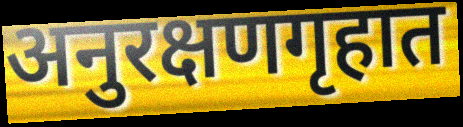
अनुरक्षणगृहात